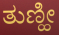
ತುಣ್ಹೀ